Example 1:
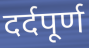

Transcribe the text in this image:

दर्दपूर्ण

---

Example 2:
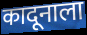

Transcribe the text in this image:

कादूनाला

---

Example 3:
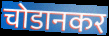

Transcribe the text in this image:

चोडानकर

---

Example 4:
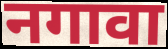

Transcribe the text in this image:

नगावा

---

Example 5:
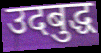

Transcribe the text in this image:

उदबुद्ध